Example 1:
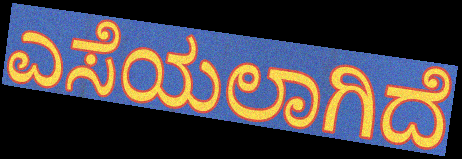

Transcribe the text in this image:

ಎಸೆಯಲಾಗಿದೆ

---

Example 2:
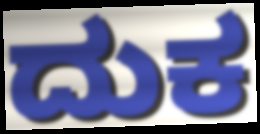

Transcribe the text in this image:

ದುಕ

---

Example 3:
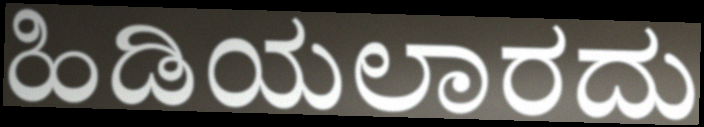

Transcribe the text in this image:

ಹಿಡಿಯಲಾರದು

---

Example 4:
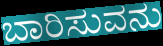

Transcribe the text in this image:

ಬಾರಿಸುವನು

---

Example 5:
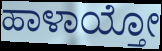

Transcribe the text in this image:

ಹಾಳಾಯ್ತೋ